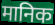
मानिक